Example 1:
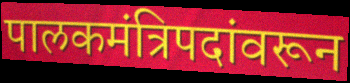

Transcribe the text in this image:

पालकमंत्रिपदांवरून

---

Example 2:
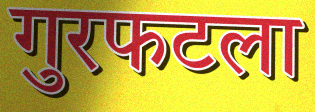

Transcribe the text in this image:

गुरफटला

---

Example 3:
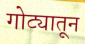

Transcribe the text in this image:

गोट्यातून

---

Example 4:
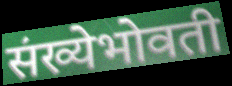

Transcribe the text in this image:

संख्येभोवती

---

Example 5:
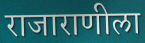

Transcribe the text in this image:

राजाराणीला